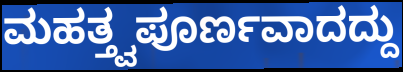
ಮಹತ್ತ್ವಪೂರ್ಣವಾದದ್ದು